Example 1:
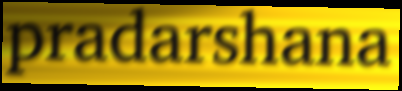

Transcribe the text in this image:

pradarshana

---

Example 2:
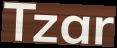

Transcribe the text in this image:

Tzar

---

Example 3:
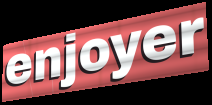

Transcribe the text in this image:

enjoyer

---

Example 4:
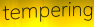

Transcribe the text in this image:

tempering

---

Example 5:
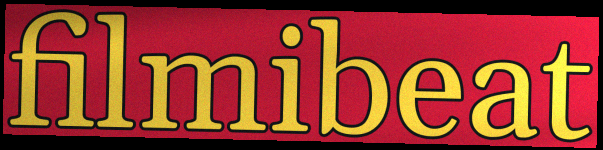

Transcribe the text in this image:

filmibeat